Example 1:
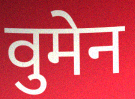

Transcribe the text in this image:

वुमेन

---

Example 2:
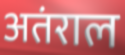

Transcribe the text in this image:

अतंराल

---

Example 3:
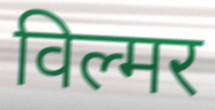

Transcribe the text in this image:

विल्मर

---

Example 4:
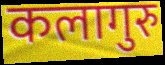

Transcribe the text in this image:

कलागुरु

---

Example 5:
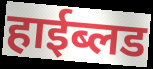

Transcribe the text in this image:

हाईब्लड